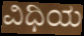
ವಿಧಿಯ